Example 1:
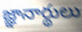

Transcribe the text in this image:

జ్ఞానార్థులు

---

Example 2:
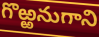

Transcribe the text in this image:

గొఱ్ఱనుగాని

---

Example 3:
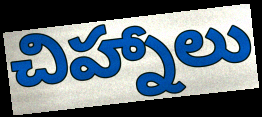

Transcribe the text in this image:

చిహ్నాలు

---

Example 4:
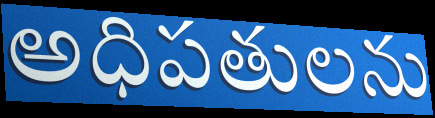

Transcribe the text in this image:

అధిపతులను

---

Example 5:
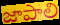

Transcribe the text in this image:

జాపాలి